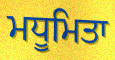
ਮਧੂਮਿਤਾ